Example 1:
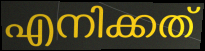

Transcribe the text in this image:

എനിക്കത്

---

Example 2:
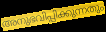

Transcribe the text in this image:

അനുഭവിപ്പിക്കുന്നതും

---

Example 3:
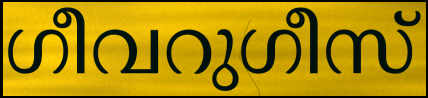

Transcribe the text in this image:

ഗീവറുഗീസ്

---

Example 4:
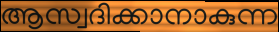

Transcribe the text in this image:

ആസ്വദിക്കാനാകുന്ന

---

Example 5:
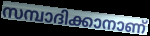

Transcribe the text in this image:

സമ്പാദിക്കാനാണ്